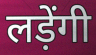
लड़ेंगी